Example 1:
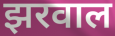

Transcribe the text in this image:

झरवाल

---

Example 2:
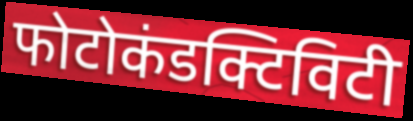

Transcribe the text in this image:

फोटोकंडक्टिविटी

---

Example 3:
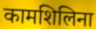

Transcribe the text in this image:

कामशिलिना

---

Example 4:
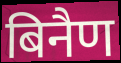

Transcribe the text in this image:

बिनैण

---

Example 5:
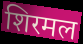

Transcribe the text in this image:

शिरमल